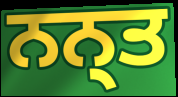
ਨਨ੍ਤ